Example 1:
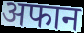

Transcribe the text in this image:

अफान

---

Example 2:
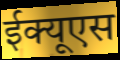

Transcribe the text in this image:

ईक्यूएस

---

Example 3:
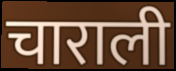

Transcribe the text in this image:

चाराली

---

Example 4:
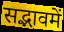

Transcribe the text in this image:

सद्भावमें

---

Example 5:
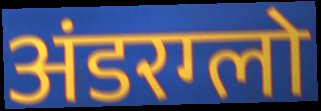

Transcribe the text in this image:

अंडरग्लो